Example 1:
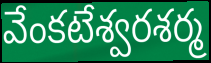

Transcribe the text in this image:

వేంకటేశ్వరశర్మ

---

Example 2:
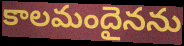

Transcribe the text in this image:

కాలమందైనను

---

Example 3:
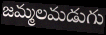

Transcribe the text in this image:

జమ్మలమడుగు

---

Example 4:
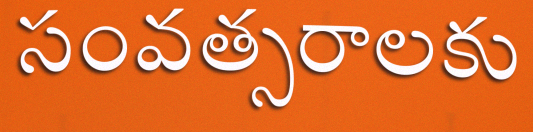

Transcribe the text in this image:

సంవత్సరాలకు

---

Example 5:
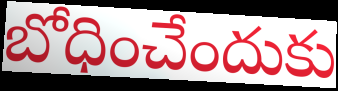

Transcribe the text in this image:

బోధించేందుకు